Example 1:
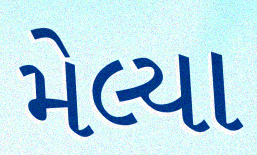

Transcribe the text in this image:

મેલ્યા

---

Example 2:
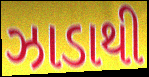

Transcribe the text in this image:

ઝાડાથી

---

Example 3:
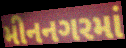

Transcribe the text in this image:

મીનનગરમાં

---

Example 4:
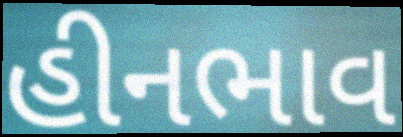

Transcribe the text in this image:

હીનભાવ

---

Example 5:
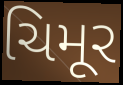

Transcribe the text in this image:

ચિમૂર